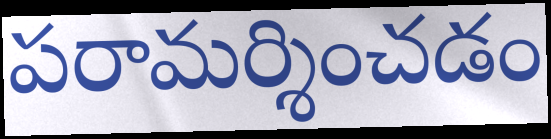
పరామర్శించడం